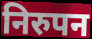
निरुपन